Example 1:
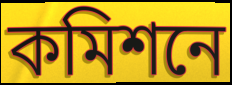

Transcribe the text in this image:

কমিশনে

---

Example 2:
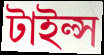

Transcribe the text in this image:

টাইল্স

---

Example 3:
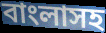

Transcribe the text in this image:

বাংলাসহ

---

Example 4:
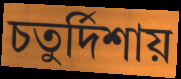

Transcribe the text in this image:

চতুর্দিশায়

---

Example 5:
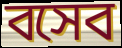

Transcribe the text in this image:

বসেব